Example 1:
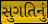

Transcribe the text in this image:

સુગતિનું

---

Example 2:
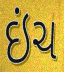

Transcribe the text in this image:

ઇંચ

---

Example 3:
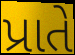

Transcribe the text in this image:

પ્રાતે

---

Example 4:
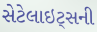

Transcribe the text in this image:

સેટેલાઇટ્સની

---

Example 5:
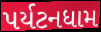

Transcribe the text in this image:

પર્યટનધામ